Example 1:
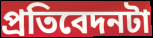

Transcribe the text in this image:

প্রতিবেদনটা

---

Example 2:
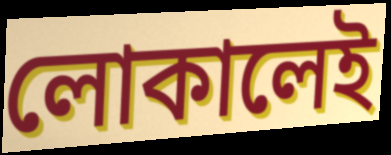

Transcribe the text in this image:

লোকালেই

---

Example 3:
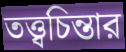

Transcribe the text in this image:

তত্ত্বচিন্তার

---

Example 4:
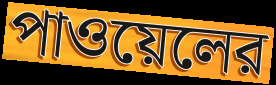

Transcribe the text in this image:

পাওয়েলের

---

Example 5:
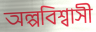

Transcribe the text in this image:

অল্পবিশ্বাসী